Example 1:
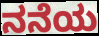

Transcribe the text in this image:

ನನೆಯ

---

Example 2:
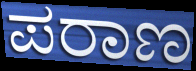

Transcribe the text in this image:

ಪರಾಣ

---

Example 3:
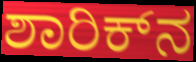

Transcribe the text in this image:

ಶಾರಿಕ್‌ನ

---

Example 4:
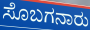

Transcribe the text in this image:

ಸೊಬಗನಾರು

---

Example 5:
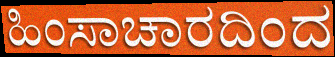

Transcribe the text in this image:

ಹಿಂಸಾಚಾರದಿಂದ